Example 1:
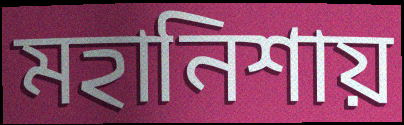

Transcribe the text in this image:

মহানিশায়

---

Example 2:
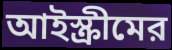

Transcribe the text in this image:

আইস্ক্রীমের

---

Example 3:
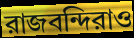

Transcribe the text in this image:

রাজবন্দিরাও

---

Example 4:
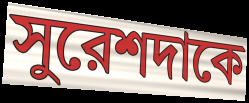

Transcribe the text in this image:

সুরেশদাকে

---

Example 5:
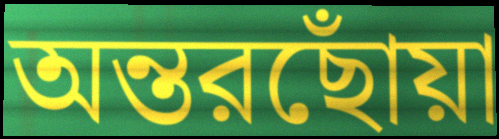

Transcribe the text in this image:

অন্তরছোঁয়া